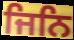
ਜਿਨਿ